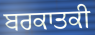
ਬਰਕਾਤਕੀ